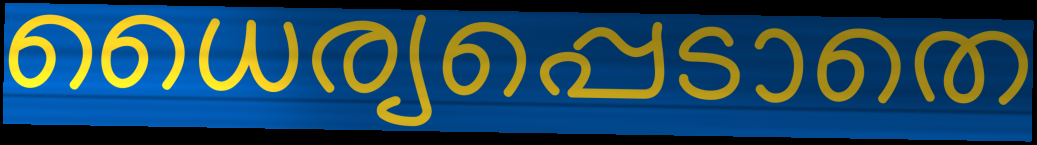
ധൈര്യപ്പെടാതെ